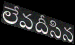
లేవదీసిన